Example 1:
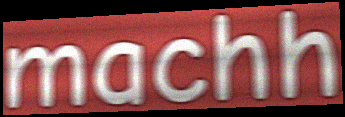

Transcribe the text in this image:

machh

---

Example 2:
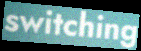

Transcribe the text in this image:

switching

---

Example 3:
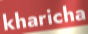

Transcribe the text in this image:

kharicha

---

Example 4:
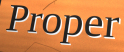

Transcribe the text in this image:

Proper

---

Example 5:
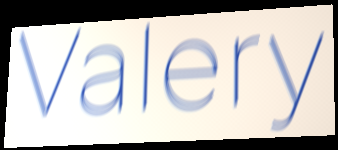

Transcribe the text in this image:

Valery